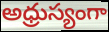
అధ్రుస్యంగా